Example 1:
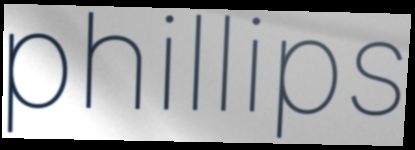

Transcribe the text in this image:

phillips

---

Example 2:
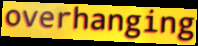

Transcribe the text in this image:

overhanging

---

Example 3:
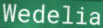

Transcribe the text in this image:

Wedelia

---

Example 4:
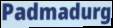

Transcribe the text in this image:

Padmadurg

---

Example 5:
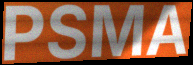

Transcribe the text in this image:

PSMA